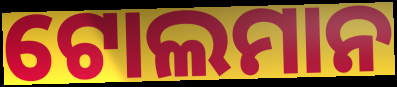
ଟୋଲମାନ